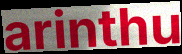
arinthu